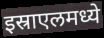
इस्राएलमध्ये